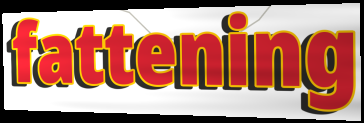
fattening